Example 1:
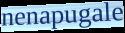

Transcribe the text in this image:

nenapugale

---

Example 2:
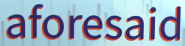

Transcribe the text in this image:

aforesaid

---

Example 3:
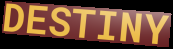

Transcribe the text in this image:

DESTINY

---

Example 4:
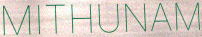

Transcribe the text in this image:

MITHUNAM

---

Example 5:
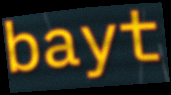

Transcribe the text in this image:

bayt